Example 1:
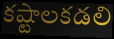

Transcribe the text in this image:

కష్టాలకడలి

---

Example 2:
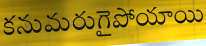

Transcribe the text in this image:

కనుమరుగైపోయాయి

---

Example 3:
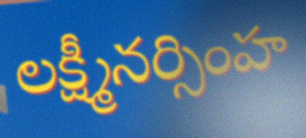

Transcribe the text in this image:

లక్ష్మీనర్సింహ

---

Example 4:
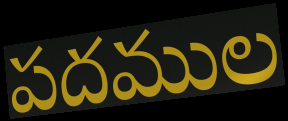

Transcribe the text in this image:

పదముల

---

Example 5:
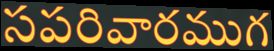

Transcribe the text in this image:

సపరివారముగ